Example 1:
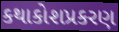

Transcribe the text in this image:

કથાકોશપ્રકરણ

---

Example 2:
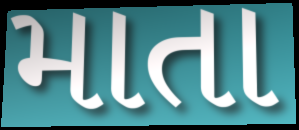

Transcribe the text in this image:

માતા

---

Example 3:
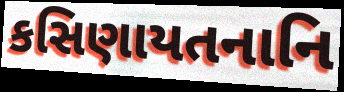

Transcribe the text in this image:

કસિણાયતનાનિ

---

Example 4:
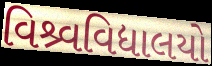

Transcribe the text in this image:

વિશ્ર્વવિદ્યાલયો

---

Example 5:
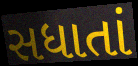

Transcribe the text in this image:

સધાતાં